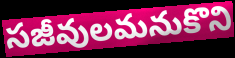
సజీవులమనుకొని